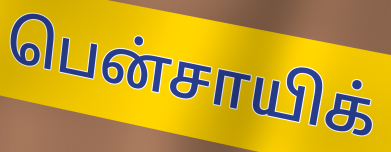
பென்சாயிக்